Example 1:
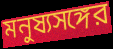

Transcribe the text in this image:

মনুষ্যসঙ্গের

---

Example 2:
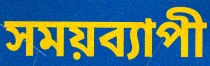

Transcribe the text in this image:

সময়ব্যাপী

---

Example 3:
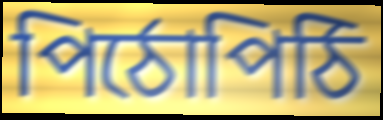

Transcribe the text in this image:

পিঠোপিঠি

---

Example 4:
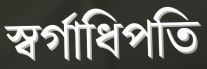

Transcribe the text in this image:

স্বর্গাধিপতি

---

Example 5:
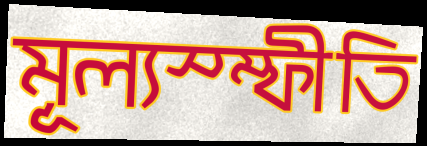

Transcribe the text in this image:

মূল্যস্ম্ফীতি